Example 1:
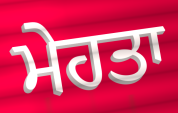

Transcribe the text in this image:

ਮੇਹਤਾ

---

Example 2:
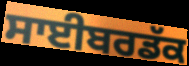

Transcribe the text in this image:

ਸਾਈਬਰਡੱਕ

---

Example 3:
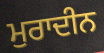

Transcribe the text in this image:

ਮੁਰਾਦੀਨ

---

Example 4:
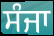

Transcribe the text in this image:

ਸੰਜਾ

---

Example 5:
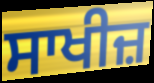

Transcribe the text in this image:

ਸਾਖੀਜ਼